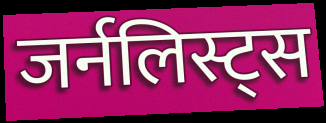
जर्नलिस्ट्स